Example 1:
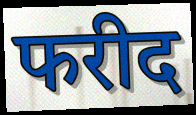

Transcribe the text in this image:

फरीद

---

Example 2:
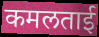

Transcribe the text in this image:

कमलताई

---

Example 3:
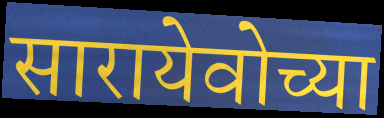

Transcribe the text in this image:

सारायेवोच्या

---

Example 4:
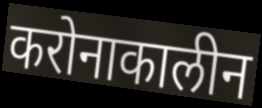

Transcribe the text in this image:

करोनाकालीन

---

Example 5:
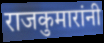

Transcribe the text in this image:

राजकुमारांनी